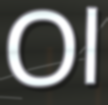
Ol